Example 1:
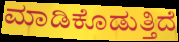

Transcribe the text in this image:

ಮಾಡಿಕೊಡುತ್ತಿದೆ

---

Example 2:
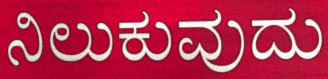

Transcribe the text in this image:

ನಿಲುಕುವುದು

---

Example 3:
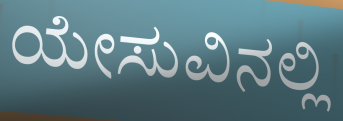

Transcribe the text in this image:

ಯೇಸುವಿನಲ್ಲಿ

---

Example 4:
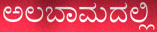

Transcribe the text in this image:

ಅಲಬಾಮದಲ್ಲಿ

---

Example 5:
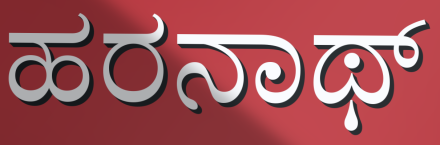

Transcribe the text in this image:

ಹರನಾಥ್